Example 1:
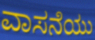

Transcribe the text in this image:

ವಾಸನೆಯು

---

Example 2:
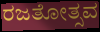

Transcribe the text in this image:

ರಜತೋತ್ಸವ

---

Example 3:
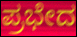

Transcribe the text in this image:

ಪ್ರಭೇದ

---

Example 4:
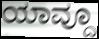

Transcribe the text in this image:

ಯಾವ್ದೂ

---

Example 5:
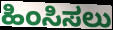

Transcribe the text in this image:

ಹಿಂಸಿಸಲು